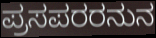
ಪ್ರಸಪರರನುನ